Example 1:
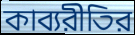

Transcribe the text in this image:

কাব্যরীতির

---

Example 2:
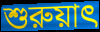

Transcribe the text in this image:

শুরুয়াৎ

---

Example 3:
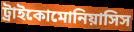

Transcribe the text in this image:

ট্রাইকোমোনিয়াসিস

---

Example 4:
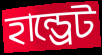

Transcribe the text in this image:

হান্ড্রেট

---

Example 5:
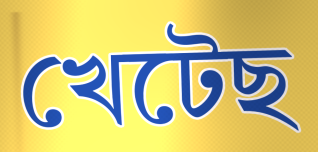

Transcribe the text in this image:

খেটেছ